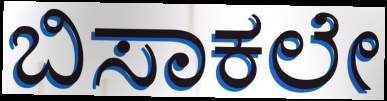
ಬಿಸಾಕಲೇ